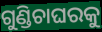
ଗୁଣ୍ଡିଚାଘରକୁ